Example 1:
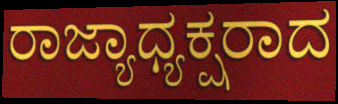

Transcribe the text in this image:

ರಾಜ್ಯಾಧ್ಯಕ್ಷರಾದ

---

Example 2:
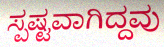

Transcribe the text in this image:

ಸ್ಪಷ್ಟವಾಗಿದ್ದವು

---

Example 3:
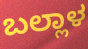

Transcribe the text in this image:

ಬಲ್ಲಾಳ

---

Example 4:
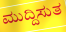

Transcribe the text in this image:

ಮುದ್ದಿಸುತ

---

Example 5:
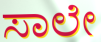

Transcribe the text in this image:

ಸಾಲೇ